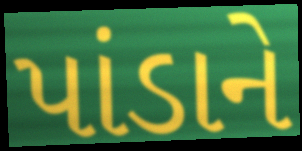
પાંડાને